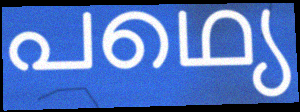
പഥ്യെ